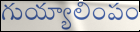
గుయ్యాలింపం